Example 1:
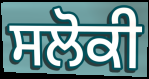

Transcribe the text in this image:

ਸਲੋਕੀ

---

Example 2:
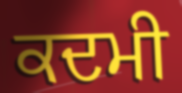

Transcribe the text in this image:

ਕਦਮੀ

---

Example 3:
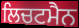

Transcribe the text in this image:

ਲਿਚਟਮੈਨ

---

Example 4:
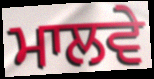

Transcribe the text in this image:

ਮਾਲਵੇ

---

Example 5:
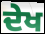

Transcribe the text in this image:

ਦੇਖ